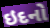
ઇદનો